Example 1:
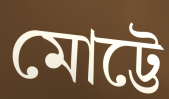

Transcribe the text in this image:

মোট্টে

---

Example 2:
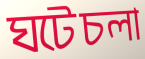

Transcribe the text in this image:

ঘটেচলা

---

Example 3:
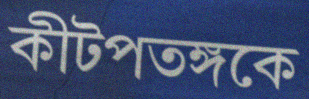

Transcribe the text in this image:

কীটপতঙ্গকে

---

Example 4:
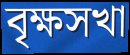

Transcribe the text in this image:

বৃক্ষসখা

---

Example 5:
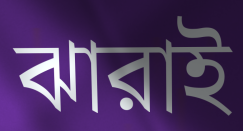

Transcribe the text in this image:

ঝারাই